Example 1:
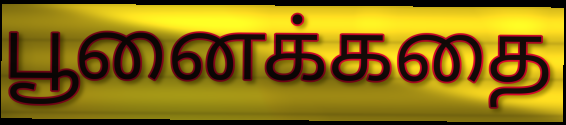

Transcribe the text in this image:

பூனைக்கதை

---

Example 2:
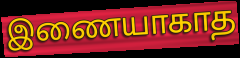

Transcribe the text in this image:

இணையாகாத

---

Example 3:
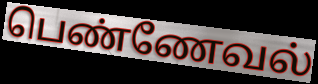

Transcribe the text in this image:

பெண்ணேவல்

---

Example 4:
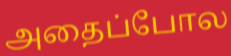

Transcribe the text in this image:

அதைப்போல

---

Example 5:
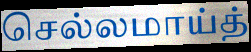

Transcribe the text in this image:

செல்லமாய்த்